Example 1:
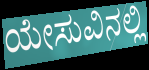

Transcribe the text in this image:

ಯೇಸುವಿನಲ್ಲಿ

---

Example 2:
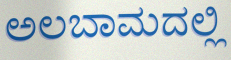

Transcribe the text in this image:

ಅಲಬಾಮದಲ್ಲಿ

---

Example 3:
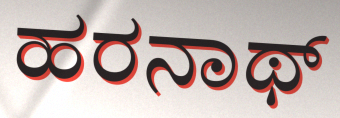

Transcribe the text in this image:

ಹರನಾಥ್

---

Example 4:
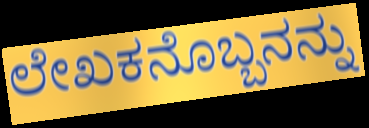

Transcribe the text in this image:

ಲೇಖಕನೊಬ್ಬನನ್ನು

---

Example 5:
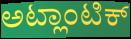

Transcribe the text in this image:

ಅಟ್ಲಾಂಟಿಕ್